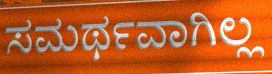
ಸಮರ್ಥವಾಗಿಲ್ಲ